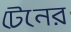
টেনের